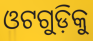
ଓଟଗୁଡ଼ିକୁ